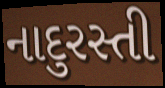
નાદુરસ્તી